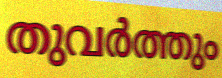
തുവർത്തും